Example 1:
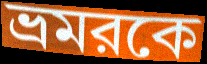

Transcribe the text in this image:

ভ্রমরকে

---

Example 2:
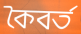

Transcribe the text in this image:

কৈবর্ত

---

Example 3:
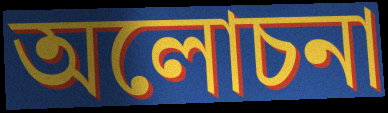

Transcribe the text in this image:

অলোচনা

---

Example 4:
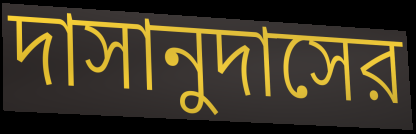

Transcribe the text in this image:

দাসানুদাসের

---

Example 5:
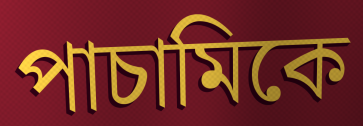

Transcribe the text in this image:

পাচামিকে